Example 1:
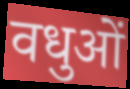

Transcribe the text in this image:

वधुओं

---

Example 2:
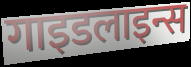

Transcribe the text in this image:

गाइडलाइन्स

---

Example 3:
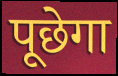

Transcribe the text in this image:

पूछेगा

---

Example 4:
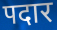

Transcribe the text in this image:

पदार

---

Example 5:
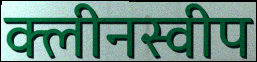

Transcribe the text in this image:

क्लीनस्वीप